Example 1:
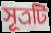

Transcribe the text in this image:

সূত্রটি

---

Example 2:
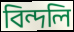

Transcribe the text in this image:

বিন্দলি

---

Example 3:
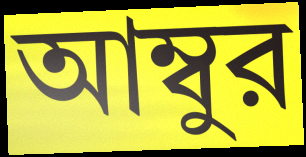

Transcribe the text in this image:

আম্বুর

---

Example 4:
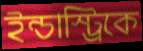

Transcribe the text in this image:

ইন্ডাস্ট্রিকে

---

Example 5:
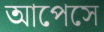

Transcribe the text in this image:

আপেসে